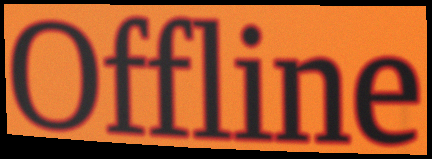
Offline